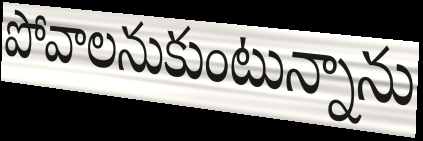
పోవాలనుకుంటున్నాను